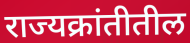
राज्यक्रांतीतील